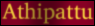
Athipattu